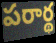
పరార్థ